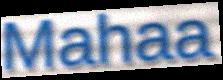
Mahaa